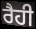
ਰੈਹੀ